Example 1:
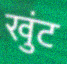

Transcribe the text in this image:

खुंट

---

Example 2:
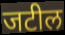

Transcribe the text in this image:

जटील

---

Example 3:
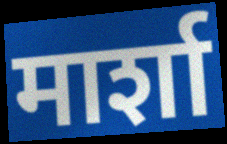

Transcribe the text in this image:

मार्शा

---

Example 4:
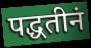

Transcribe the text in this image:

पद्धतीनं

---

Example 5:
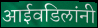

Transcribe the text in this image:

आईवडिलांनी